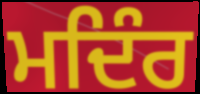
ਮਦਿੰਰ